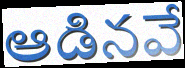
ఆడినవే